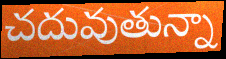
చదువుతున్నా